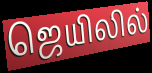
ஜெயிலில்